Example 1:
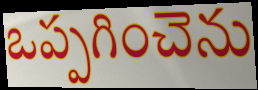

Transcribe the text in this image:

ఒప్పగించెను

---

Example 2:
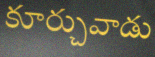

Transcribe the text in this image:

కూర్చువాడు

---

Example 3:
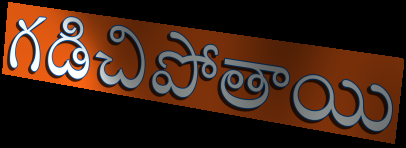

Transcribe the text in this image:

గడిచిపోతాయి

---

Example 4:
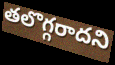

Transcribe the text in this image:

తలొగ్గరాదని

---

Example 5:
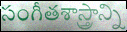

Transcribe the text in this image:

సంగీతశాస్త్రాన్ని